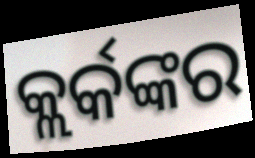
କ୍ଲର୍କଙ୍କର